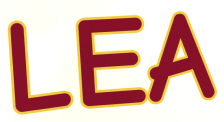
LEA